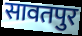
सावतपुर